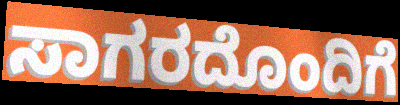
ಸಾಗರದೊಂದಿಗೆ